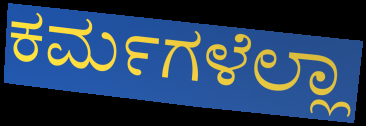
ಕರ್ಮಗಳೆಲ್ಲಾ